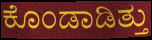
ಕೊಂಡಾಡಿತ್ತು